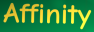
Affinity